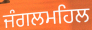
ਜੰਗਲਮਹਿਲ